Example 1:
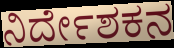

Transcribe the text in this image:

ನಿರ್ದೇಶಕನ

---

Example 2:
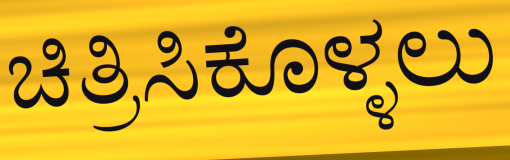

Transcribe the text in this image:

ಚಿತ್ರಿಸಿಕೊಳ್ಳಲು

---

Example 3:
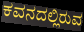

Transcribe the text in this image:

ಕವನದಲ್ಲಿರುವ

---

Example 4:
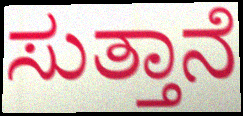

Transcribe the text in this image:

ಸುತ್ತಾನೆ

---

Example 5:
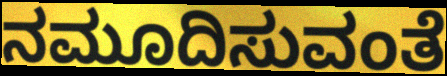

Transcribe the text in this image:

ನಮೂದಿಸುವಂತೆ